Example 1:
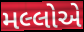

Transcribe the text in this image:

મલ્લોએ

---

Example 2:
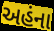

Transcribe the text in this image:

અહંના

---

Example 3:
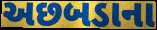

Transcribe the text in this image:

અછબડાના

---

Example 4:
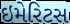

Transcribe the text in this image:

ઇમેરિટસ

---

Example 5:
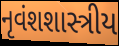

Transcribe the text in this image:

નૃવંશશાસ્ત્રીય